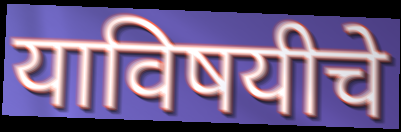
याविषयीचे